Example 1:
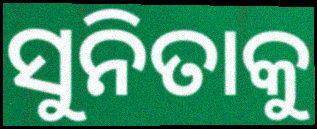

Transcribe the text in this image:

ସୁନିତାକୁ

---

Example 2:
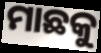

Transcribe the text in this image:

ମାଛକୁ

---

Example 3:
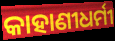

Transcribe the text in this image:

କାହାଣୀଧର୍ମୀ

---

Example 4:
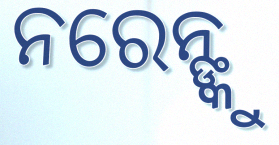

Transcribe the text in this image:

ନରେନ୍ଙ୍କୁ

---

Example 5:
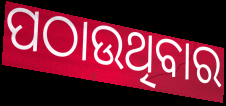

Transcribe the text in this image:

ପଠାଉଥିବାର